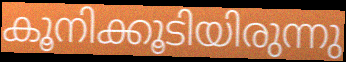
കൂനിക്കൂടിയിരുന്നു